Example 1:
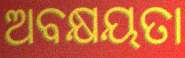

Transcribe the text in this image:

ଅବକ୍ଷୟତା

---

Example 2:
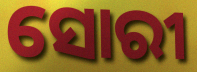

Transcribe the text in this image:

ସୋରୀ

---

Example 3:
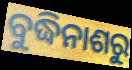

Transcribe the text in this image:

ବୁଦ୍ଧିନାଶରୁ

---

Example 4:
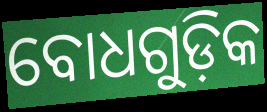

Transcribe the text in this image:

ବୋଧଗୁଡ଼ିକ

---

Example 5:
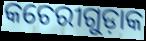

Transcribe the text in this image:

କଚେରୀଗୁଡ଼ାକ